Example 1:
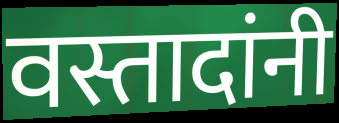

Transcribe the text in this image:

वस्तादांनी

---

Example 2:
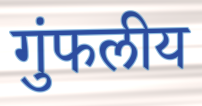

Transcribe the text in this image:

गुंफलीय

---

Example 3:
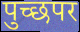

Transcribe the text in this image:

पुच्छपर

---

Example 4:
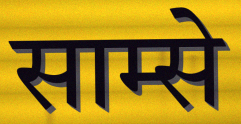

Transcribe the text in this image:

साम्से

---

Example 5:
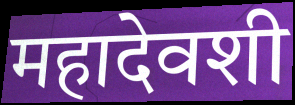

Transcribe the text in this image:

महादेवशी